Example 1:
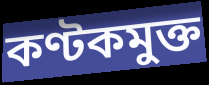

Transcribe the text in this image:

কণ্টকমুক্ত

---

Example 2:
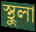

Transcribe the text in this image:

স্থুলা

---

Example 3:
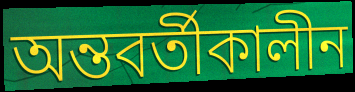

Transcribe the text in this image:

অন্তবর্তীকালীন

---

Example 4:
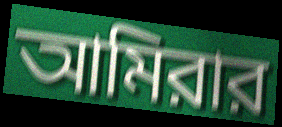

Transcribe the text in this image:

আমিরার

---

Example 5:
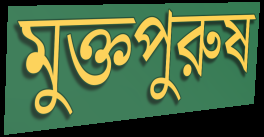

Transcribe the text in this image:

মুক্তপুরুষ